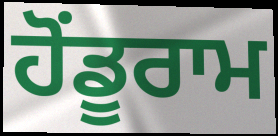
ਹੋਂਡੂਰਾਮ